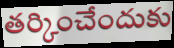
తర్కించేందుకు